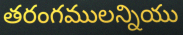
తరంగములన్నియు